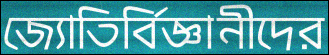
জ্যোতির্বিজ্ঞানীদের